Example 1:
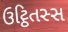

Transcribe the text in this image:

ઉટ્ઠિતસ્સ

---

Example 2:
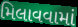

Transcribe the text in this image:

મિલાવવામાં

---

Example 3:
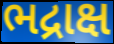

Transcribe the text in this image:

ભદ્રાક્ષ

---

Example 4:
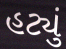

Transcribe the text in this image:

હટ્યું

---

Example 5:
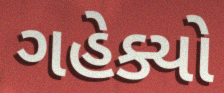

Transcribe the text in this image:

ગહેક્યો